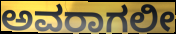
ಅವರಾಗಲೀ